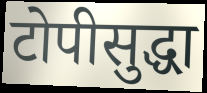
टोपीसुद्धा